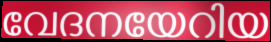
വേദനയേറിയ